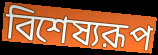
বিশেষ্যরূপ